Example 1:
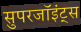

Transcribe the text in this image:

सुपरजॉइंट्स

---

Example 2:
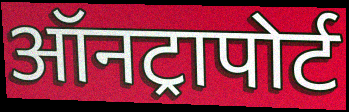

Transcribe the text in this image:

ऑनट्रापोर्ट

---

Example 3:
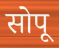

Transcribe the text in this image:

सोपू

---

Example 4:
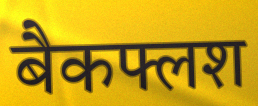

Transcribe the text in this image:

बैकफ्लश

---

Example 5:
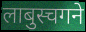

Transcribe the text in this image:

लाबुस्चगने